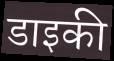
डाइकी